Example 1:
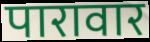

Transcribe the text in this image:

पारावार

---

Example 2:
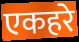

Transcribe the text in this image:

एकहरे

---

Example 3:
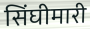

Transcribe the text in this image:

सिंघीमारी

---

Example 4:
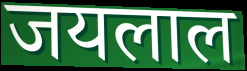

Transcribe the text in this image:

जयलाल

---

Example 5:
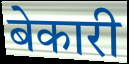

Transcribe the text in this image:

बेकारी